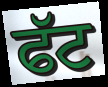
ਫੱਟ